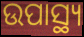
ଉପାସ୍ଥ୍ୟ